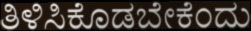
ತಿಳಿಸಿಕೊಡಬೇಕೆಂದು